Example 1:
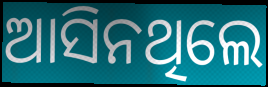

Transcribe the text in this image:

ଆସିନଥିଲେ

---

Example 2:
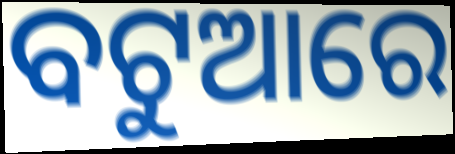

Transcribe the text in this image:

ବଟୁଆରେ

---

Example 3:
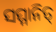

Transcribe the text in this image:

ସମ୍ମାନିତ୍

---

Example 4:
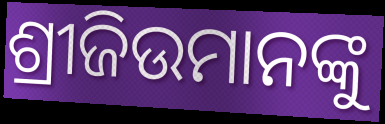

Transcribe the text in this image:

ଶ୍ରୀଜିଉମାନଙ୍କୁ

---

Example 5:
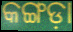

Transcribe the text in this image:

କଙ୍ଗଡ଼ା